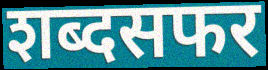
शब्दसफर